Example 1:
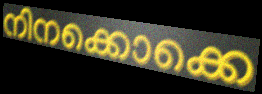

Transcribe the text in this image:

നിനക്കൊക്കെ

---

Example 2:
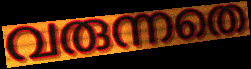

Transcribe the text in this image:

വരുന്നതെ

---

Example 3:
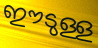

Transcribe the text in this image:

ഈടുള്ള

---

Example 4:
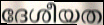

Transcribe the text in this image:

ദേശീയത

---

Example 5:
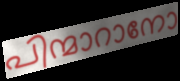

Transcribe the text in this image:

പിന്മാറാനോ